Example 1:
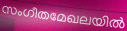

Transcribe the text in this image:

സംഗീതമേഖലയിൽ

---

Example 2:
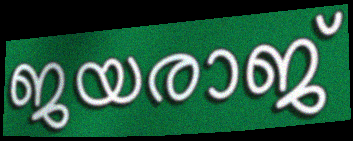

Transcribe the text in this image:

ജയരാജ്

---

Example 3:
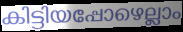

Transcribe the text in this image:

കിട്ടിയപ്പോഴെല്ലാം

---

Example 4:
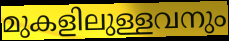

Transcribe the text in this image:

മുകളിലുള്ളവനും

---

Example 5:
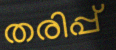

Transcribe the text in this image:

തരിപ്പ്